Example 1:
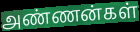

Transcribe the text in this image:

அண்ணன்கள்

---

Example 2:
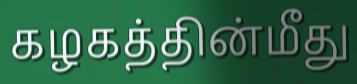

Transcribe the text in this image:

கழகத்தின்மீது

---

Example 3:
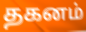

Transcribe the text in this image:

தகனம்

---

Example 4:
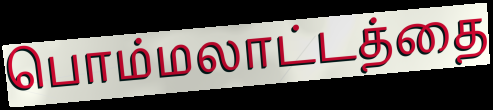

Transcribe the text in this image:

பொம்மலாட்டத்தை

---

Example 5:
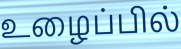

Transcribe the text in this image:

உழைப்பில்